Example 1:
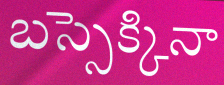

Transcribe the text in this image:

బస్సెక్కినా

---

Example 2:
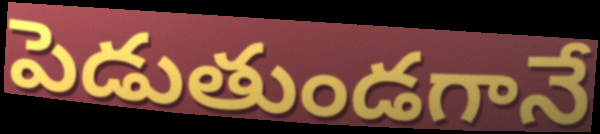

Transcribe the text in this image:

పెడుతుండగానే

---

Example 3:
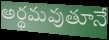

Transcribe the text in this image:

అర్థమవుతూనే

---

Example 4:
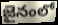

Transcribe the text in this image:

జైనంలో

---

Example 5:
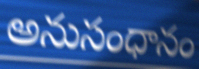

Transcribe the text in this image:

అనుసంధానం